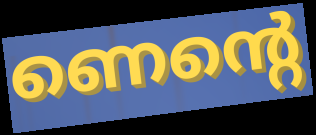
ണെന്റെ